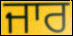
ਜਾਰ